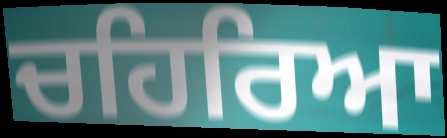
ਚਹਿਰਿਆ